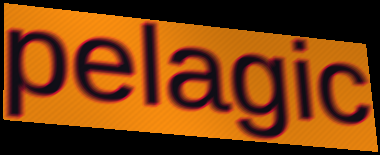
pelagic